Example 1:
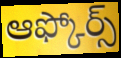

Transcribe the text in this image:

ఆఫ్కోర్స్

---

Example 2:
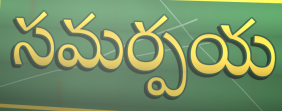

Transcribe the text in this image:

సమర్పయ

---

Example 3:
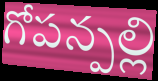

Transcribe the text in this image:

గోపన్పల్లి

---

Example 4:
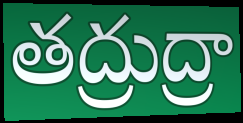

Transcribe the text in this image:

తద్రుద్రా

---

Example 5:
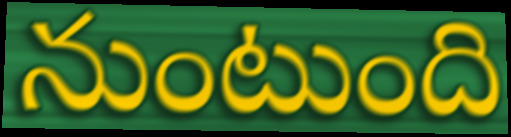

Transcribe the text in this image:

నుంటుంది